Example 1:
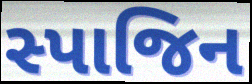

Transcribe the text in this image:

સ્પાજિન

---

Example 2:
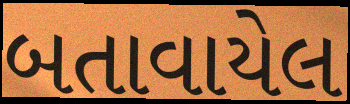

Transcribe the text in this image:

બતાવાયેલ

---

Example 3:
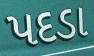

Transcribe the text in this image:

પદડા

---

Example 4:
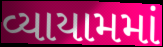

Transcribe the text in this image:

વ્યાયામમાં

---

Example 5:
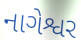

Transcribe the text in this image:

નાગેશ્વર